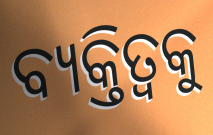
ବ୍ୟକ୍ତିତ୍ୱକୁ